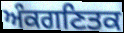
ਅੰਕਗਣਿਤਕ